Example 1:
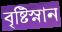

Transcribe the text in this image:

বৃষ্টিস্নান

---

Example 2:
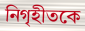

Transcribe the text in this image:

নিগৃহীতকে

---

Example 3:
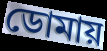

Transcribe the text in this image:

ডোমায়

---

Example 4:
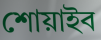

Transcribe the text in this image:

শোয়াইব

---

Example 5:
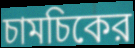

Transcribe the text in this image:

চামচিকের